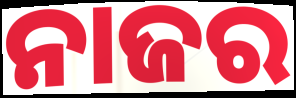
ନାଜର